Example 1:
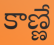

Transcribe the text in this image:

కాణ్ణే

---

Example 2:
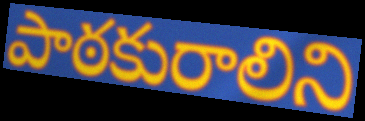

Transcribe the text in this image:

పాఠకురాలిని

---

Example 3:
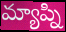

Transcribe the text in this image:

మ్యాప్ని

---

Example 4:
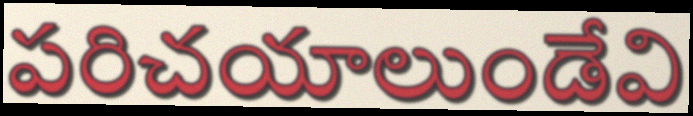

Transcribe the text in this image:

పరిచయాలుండేవి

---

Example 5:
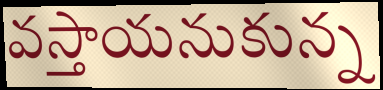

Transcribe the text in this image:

వస్తాయనుకున్న